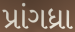
પ્રાંગધ્રા